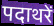
पदाथरें